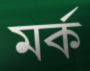
মর্ক